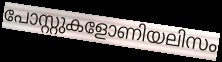
പോസ്റ്റുകളോണിയലിസം